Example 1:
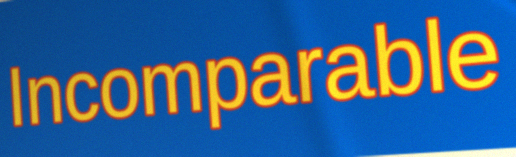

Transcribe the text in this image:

Incomparable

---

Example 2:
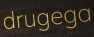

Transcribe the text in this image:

drugega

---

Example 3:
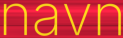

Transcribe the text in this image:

navn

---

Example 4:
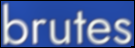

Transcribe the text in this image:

brutes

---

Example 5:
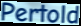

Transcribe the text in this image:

Pertold